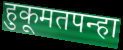
हुकूमतपन्हा